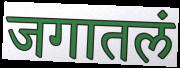
जगातलं